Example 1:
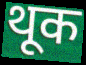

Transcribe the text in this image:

थूक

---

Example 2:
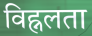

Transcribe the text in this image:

विह्नलता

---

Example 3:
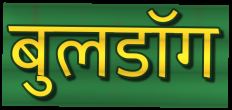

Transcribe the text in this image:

बुलडॉग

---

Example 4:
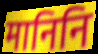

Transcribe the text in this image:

मानिनि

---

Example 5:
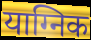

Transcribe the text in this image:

याग्निक